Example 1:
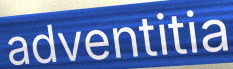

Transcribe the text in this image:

adventitia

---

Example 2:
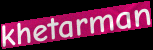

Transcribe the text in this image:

khetarman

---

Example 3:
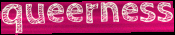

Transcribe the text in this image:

queerness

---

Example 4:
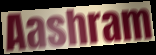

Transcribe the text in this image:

Aashram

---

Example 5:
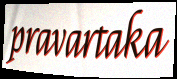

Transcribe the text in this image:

pravartaka